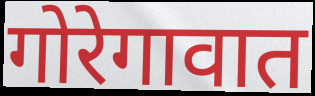
गोरेगावात